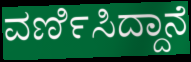
ವರ್ಣಿಸಿದ್ದಾನೆ